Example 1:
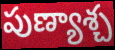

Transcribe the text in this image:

పుణ్యాశ్చ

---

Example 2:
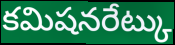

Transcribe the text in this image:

కమిషనరేట్కు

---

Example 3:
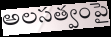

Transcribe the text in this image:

అలసత్వంపై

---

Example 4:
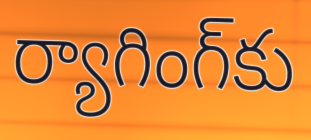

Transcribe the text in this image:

ర్యాగింగ్‌కు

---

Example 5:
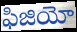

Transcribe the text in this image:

ఫిజియో